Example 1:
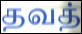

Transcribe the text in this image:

தவத்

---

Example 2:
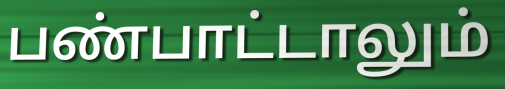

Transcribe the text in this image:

பண்பாட்டாலும்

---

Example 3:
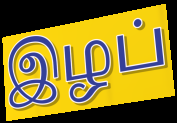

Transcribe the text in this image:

இழப்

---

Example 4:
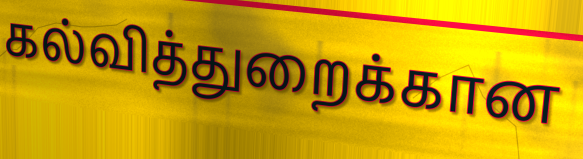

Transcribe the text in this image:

கல்வித்துறைக்கான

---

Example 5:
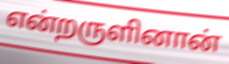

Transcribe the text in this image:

என்றருளினான்